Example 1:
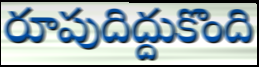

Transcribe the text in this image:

రూపుదిద్దుకొంది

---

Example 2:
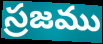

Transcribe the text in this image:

స్రజము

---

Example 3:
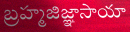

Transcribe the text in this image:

బ్రహ్మజిజ్ఞాసాయా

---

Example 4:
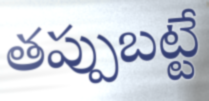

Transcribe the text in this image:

తప్పుబట్టే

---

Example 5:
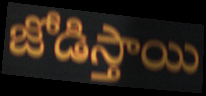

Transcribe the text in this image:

జోడిస్తాయి